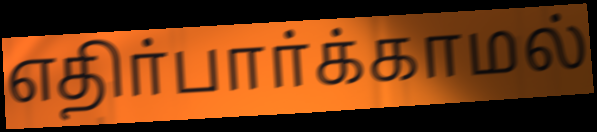
எதிர்பார்க்காமல்